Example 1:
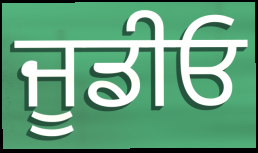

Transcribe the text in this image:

ਜੂਡੀਓ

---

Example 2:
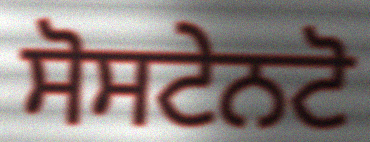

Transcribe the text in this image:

ਸੋਸਟੇਨਟੋ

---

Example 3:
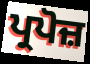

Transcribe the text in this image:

ਪ੍ਰਪੋਜ਼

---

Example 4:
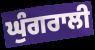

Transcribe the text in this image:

ਘੁੰਗਰਾਲੀ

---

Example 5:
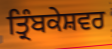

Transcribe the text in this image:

ਤ੍ਰਿੰਬਕੇਸ਼ਵਰ